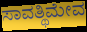
ಸಾವತ್ಥಿಮೇವ